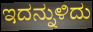
ಇದನ್ನುಳಿದು